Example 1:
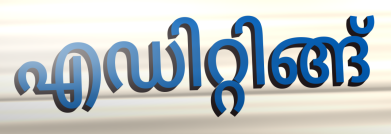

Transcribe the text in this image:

എഡിറ്റിങ്ങ്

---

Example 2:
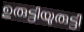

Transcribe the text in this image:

ഉരുട്ടിയുരുട്ടി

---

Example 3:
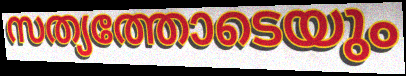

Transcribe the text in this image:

സത്യത്തോടെയും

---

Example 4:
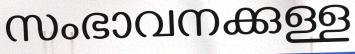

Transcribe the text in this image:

സംഭാവനക്കുള്ള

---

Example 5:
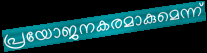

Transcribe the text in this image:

പ്രയോജനകരമാകുമെന്ന്